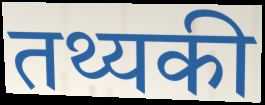
तथ्यकी